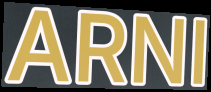
ARNI